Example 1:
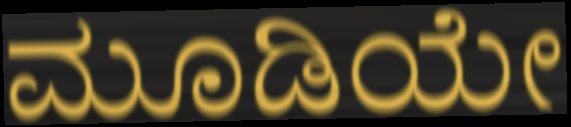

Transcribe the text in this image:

ಮೂಡಿಯೇ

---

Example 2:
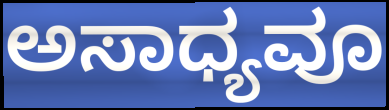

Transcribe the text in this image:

ಅಸಾಧ್ಯವೂ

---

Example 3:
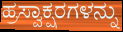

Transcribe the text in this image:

ಹ್ರಸ್ವಾಕ್ಷರಗಳನ್ನು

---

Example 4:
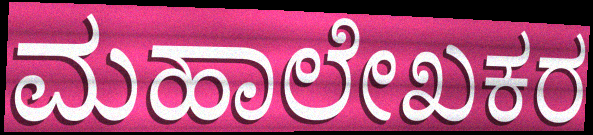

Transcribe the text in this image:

ಮಹಾಲೇಖಕರ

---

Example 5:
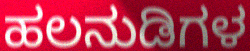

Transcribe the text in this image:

ಹಲನುಡಿಗಳ